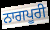
ਨਾਗਪੂਰੀ